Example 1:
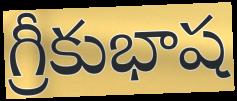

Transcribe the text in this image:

గ్రీకుభాష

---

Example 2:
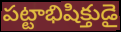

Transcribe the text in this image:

పట్టాభిషిక్తుడై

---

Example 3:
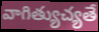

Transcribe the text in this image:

వాగిత్యుచ్యతే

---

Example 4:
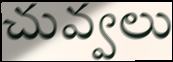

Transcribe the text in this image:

చువ్వలు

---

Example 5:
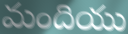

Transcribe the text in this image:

మందియు